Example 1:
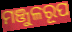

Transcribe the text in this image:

ମଞ୍ଜୁଳରୂପ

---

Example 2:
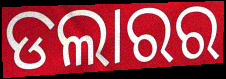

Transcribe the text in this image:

ଡଲାରର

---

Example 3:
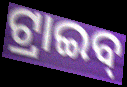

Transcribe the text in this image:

ଟ୍ରାଇବ୍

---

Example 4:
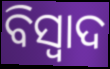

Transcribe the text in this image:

ବିସ୍ୱାଦ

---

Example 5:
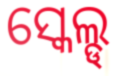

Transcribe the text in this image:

ସ୍କେଲ୍ଡ୍